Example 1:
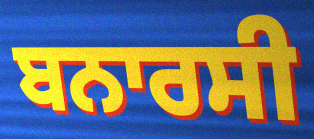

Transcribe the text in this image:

ਬਨਾਰਸੀ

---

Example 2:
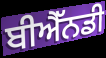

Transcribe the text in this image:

ਬੀਐੱਨਡੀ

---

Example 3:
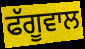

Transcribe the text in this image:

ਫੱਗੂਵਾਲ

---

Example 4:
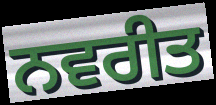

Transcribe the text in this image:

ਨਵਰੀਤ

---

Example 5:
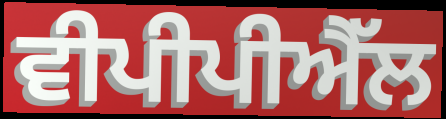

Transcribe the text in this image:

ਵੀਪੀਪੀਐੱਲ